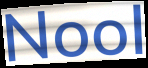
Nool